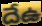
దేఉ